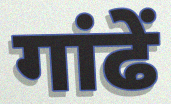
गांढें